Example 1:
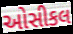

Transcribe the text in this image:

ઓસીકલ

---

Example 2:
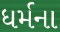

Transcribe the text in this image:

ધર્મના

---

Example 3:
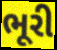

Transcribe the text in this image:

ભૂરી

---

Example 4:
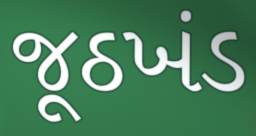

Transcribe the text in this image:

જૂઠખંડ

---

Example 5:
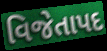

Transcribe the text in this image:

વિજેતાપદ